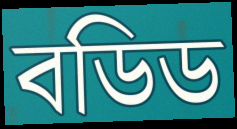
বডিড